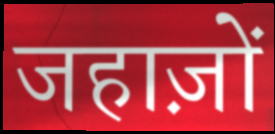
जहाज़ों